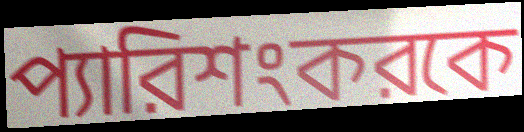
প্যারিশংকরকে